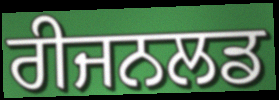
ਰੀਜਨਲਡ